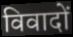
विवादों